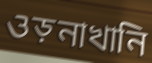
ওড়্নাখানি